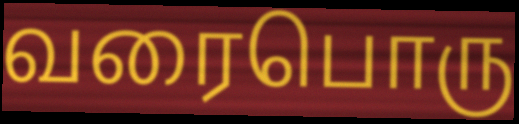
வரைபொரு